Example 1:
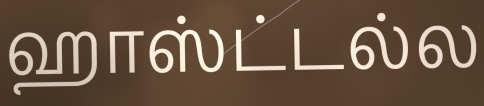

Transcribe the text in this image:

ஹாஸ்ட்டல்ல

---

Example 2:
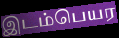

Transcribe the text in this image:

இடம்பெயர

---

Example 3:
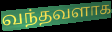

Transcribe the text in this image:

வந்தவளாக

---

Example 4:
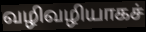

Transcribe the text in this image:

வழிவழியாகச்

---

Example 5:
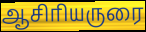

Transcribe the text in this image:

ஆசிரியருரை